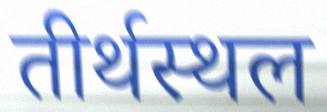
तीर्थस्थल